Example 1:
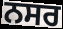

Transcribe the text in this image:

ਨਸਰ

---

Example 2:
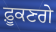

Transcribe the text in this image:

ਫ਼ੂਕਣਗੇ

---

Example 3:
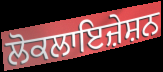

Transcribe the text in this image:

ਲੋਕਲਾਇਜ਼ੇਸ਼ਨ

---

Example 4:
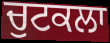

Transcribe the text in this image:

ਚੁਟਕਲਾ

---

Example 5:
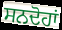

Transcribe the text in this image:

ਸਨਦੋਹਾਂ